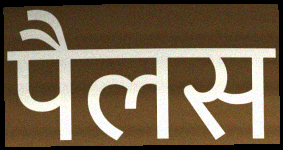
पैलस